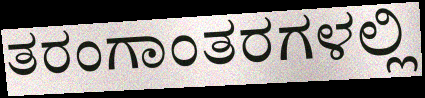
ತರಂಗಾಂತರಗಳಲ್ಲಿ